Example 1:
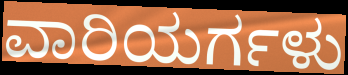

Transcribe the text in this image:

ವಾರಿಯರ್ಗಳು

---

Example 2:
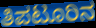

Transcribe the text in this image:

ತಿಪಟೂರಿನ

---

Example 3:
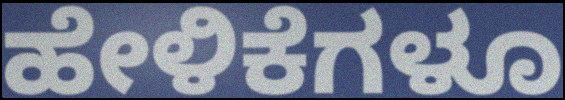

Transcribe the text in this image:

ಹೇಳಿಕೆಗಳೂ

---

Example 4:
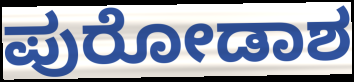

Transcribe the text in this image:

ಪುರೋಡಾಶ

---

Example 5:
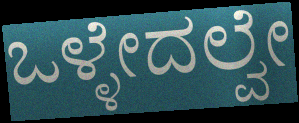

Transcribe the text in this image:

ಒಳ್ಳೇದಲ್ವೇ